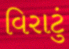
વિરાટું